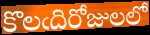
కొలఁదిరోజులలో